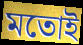
মতোই